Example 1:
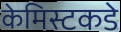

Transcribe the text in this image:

केमिस्टकडे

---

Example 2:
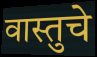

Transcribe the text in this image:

वास्तुचे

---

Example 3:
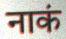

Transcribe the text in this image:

नाकं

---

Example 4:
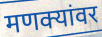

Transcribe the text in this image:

मणक्यांवर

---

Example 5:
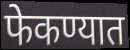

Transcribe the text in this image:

फेकण्यात